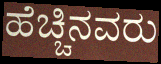
ಹೆಚ್ಚಿನವರು